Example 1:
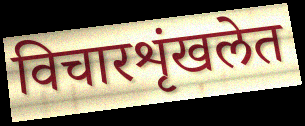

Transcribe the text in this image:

विचारशृंखलेत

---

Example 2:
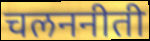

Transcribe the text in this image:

चलननीती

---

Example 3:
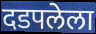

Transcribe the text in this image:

दडपलेला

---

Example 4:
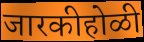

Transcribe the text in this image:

जारकीहोळी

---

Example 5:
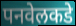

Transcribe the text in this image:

पनवेलकडे